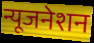
न्यूजनेशन